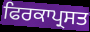
ਫਿਰਕਾਪ੍ਰਸਤ